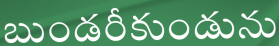
బుండరీకుండును